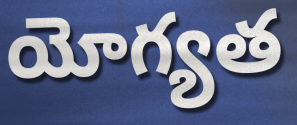
యోగ్యత